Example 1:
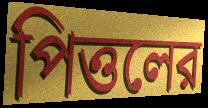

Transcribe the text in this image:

পিত্তলের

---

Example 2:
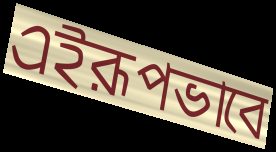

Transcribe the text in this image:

এইরূপভাবে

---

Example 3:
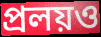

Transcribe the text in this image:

প্রলয়ও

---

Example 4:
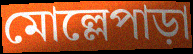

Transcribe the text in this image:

মোল্লেপাড়া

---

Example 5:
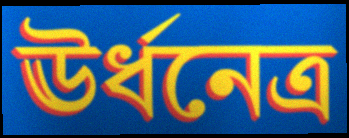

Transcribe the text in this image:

ঊর্ধনেত্র